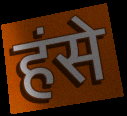
हंसे